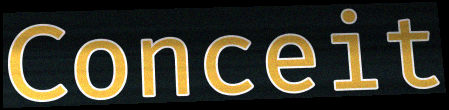
Conceit